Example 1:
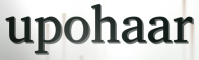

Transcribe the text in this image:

upohaar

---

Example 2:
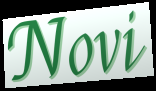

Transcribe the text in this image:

Novi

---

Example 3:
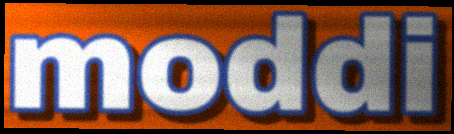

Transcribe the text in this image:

moddi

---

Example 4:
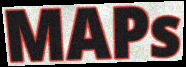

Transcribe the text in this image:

MAPs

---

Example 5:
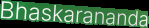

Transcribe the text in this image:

Bhaskarananda